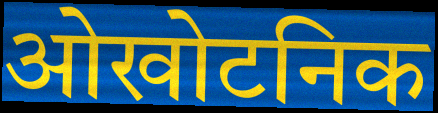
ओखोटनिक